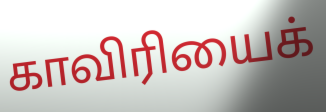
காவிரியைக்